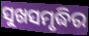
ସୁଖସମୃଦ୍ଧିର